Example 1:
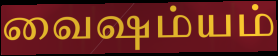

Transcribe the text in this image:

வைஷம்யம்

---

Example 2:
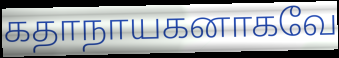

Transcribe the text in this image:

கதாநாயகனாகவே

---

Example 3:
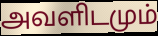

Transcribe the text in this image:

அவளிடமும்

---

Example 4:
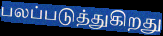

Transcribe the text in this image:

பலப்படுத்துகிறது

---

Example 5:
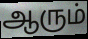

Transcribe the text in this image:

ஆரும்